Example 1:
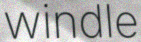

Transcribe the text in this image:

windle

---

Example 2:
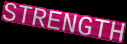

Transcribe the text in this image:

STRENGTH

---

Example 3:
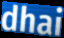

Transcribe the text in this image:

dhai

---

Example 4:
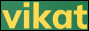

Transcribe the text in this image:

vikat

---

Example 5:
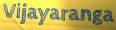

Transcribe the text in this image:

Vijayaranga